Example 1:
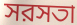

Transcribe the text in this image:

সরসতা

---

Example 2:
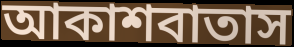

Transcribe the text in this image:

আকাশবাতাস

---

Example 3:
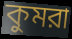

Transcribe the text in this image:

কুমরা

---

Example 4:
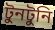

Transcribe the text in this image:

টুনটুনি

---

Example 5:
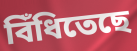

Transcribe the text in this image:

বিঁধিতেছে